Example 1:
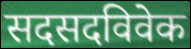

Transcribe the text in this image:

सदसदविवेक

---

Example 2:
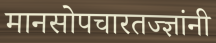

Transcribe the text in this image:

मानसोपचारतज्ज्ञांनी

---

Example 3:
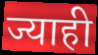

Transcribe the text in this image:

ज्याही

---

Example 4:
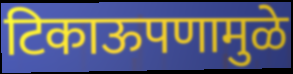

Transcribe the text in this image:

टिकाऊपणामुळे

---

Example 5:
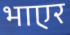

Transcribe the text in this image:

भाएर